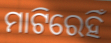
ମାଟିରେହିଁ